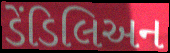
ડેંડિલિઅન